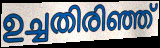
ഉച്ചതിരിഞ്ഞ്